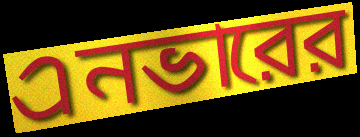
এনভারের